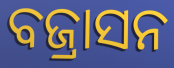
ବଜ୍ରାସନ